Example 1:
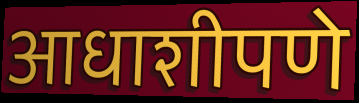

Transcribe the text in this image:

आधाशीपणे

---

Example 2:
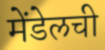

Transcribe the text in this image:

मेंडेलची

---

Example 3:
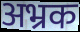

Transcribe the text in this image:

अभ्रक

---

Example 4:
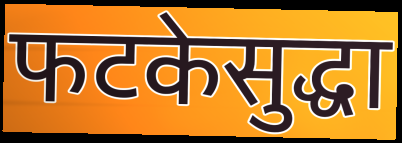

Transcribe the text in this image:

फटकेसुद्धा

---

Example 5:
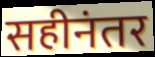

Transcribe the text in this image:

सहीनंतर